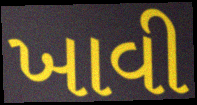
ખાવી